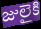
జులైకి